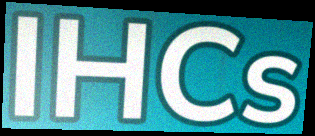
IHCs